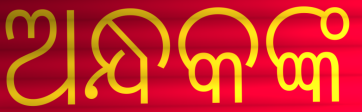
ଅନ୍ଧକଙ୍କ